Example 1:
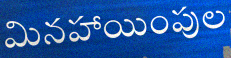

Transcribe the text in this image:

మినహాయింపుల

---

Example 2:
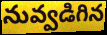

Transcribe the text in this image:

నువ్వడిగిన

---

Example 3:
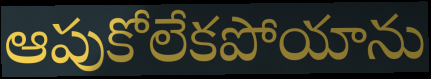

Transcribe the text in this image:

ఆపుకోలేకపోయాను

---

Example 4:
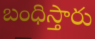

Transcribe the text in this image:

బంధిస్తారు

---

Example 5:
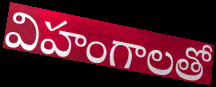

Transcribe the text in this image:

విహంగాలతో